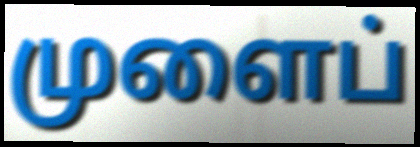
முளைப்